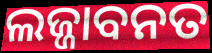
ଲଜ୍ଜାବନତ